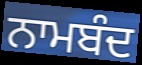
ਨਾਮਬੰਦ